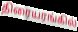
திரையரங்கில்